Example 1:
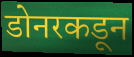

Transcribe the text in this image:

डोनरकडून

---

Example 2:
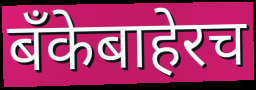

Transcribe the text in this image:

बँकेबाहेरच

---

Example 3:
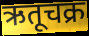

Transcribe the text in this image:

ऋतूचक्र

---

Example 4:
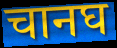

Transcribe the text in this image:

चानघ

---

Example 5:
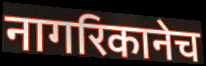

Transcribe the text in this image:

नागरिकानेच